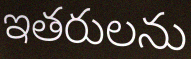
ఇతరులను